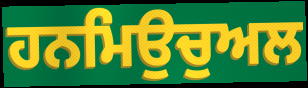
ਹਨਮਿਉਚੁਅਲ